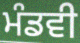
ਮੰਡਵੀ